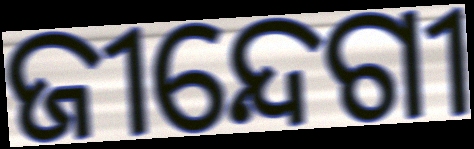
ଜୀନ୍ଦେଗୀ